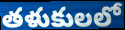
తళుకులలో